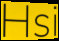
Hsi